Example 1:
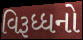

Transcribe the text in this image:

વિરૂધ્ધનો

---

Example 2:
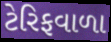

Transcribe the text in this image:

ટેરિફવાળા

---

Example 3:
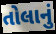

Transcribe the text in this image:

તોલાનું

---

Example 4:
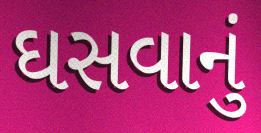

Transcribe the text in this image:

ઘસવાનું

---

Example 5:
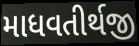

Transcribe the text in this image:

માધવતીર્થજી